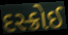
દસ્ક્રોઈ